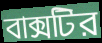
বাক্সটির